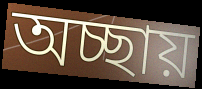
অচ্ছায়